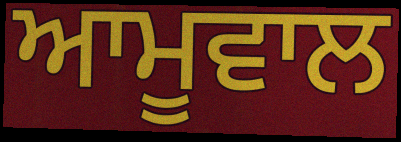
ਆਮੂਵਾਲ